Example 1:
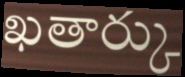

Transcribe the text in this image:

ఖతార్కు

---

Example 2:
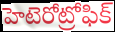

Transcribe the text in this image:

హెటెరోట్రోఫిక్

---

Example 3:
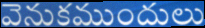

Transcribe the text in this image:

వెనుకముందులు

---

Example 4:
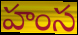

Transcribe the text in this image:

హంస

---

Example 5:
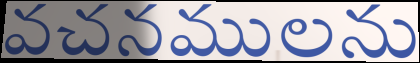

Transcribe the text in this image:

వచనములను